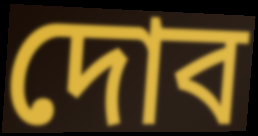
দোব